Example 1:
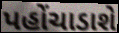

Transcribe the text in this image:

પહોંચાડાશે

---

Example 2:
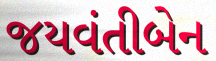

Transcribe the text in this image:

જયવંતીબેન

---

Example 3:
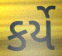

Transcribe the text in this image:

કર્યે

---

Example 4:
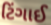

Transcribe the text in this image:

ટિંગાઈ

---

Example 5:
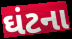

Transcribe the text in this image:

ઘંટના